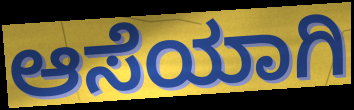
ಆಸೆಯಾಗಿ